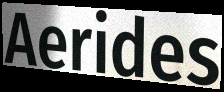
Aerides